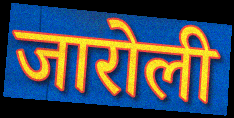
जारोली